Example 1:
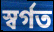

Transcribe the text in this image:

স্বর্গত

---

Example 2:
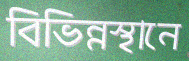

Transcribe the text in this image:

বিভিন্নস্থানে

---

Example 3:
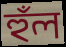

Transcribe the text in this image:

হুঁল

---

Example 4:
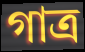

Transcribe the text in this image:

গাত্র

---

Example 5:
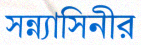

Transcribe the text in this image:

সন্ন্যাসিনীর